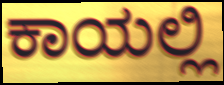
ಕಾಯಲ್ಲಿ